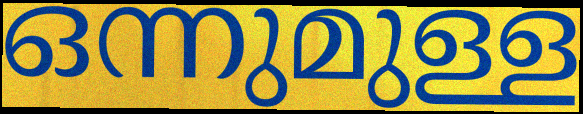
ഒന്നുമുള്ള